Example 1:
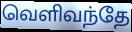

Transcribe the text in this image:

வெளிவந்தே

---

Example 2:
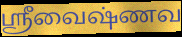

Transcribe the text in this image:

ஸ்ரீவைஷ்ணவ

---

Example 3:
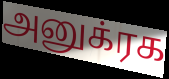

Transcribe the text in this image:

அனுக்ரக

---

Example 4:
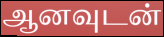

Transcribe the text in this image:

ஆனவுடன்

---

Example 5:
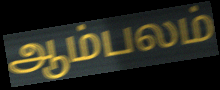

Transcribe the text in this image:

ஆம்பலம்